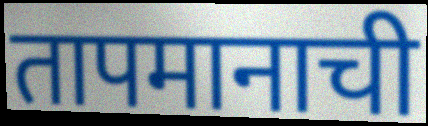
तापमानाची